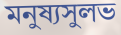
মনুষ্যসুলভ